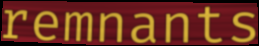
remnants